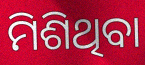
ମିଶିଥିବା